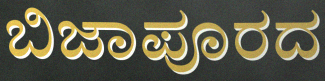
ಬಿಜಾಪೂರದ